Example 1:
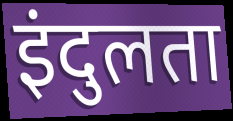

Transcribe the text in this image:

इंदुलता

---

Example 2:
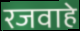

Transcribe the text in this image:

रजवाहे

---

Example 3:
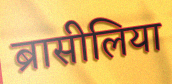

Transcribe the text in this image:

ब्रासीलिया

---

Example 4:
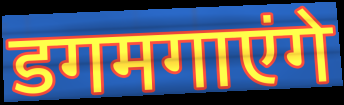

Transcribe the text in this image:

डगमगाएंगे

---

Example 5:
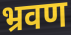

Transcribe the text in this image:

भ्रवण